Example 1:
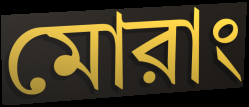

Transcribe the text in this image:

মোরাং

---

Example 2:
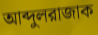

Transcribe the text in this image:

আব্দুলরাজাক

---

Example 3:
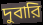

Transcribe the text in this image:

দুবারি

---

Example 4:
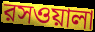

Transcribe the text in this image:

রসওয়ালা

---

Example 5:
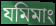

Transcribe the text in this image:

যমিমাং